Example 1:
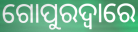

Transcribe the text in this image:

ଗୋପୁରଦ୍ଵାରେ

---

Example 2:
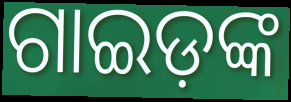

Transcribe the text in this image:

ଗାଇଡ଼ଙ୍କ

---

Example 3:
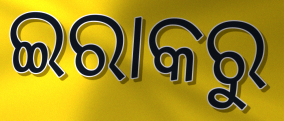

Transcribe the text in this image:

ଇରାକରୁ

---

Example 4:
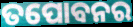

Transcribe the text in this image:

ତପୋବନର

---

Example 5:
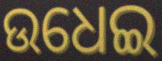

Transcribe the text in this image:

ଉଧେଇ